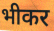
भीकर